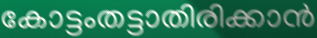
കോട്ടംതട്ടാതിരിക്കാൻ